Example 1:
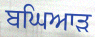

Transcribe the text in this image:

ਬਘਿਆੜ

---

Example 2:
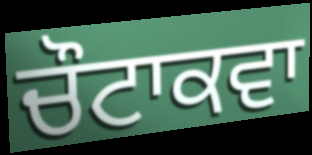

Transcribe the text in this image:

ਚੌਟਾਕਵਾ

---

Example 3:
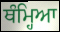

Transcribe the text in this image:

ਥੰਮ੍ਹਿਆ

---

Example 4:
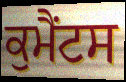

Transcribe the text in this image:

ਕੁਮੈਂਟਸ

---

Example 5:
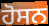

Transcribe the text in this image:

ਹੋਸਨ